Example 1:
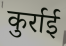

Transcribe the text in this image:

कुर्राई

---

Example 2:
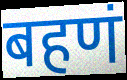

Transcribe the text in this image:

बहणं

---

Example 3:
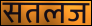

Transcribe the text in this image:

सतलज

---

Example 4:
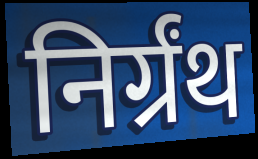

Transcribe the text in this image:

निर्ग्रंथ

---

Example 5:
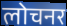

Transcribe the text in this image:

लोचनर